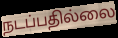
நடப்பதில்லை